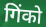
गिंको